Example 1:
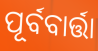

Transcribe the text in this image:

ପୂର୍ବବାର୍ତ୍ତା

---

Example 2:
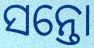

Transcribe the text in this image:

ସନ୍ତୋ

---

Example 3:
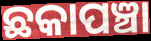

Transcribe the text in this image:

ଛକାପଞ୍ଚା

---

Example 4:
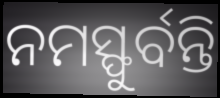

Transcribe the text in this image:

ନମସ୍ଫୁର୍ବନ୍ତି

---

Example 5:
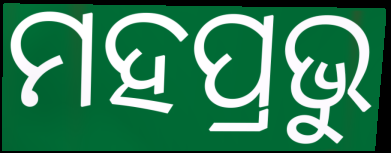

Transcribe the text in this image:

ମହପ୍ରଭୁ